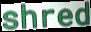
shred